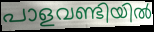
പാളവണ്ടിയിൽ